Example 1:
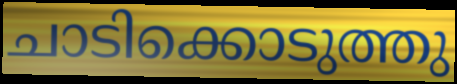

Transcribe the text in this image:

ചാടിക്കൊടുത്തു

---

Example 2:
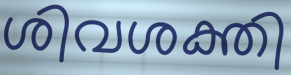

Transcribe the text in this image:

ശിവശക്തി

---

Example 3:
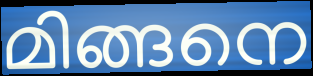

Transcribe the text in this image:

മിങ്ങനെ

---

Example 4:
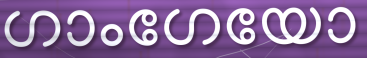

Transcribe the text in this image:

ഗാംഗേയോ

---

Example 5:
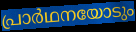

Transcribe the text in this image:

പ്രാർഥനയോടും